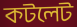
কটলেট